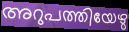
അറുപത്തിയേഴു